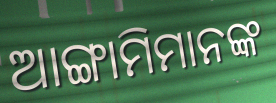
ଆଙ୍ଗାମିମାନଙ୍କ